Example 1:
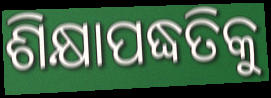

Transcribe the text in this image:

ଶିକ୍ଷାପଦ୍ଧତିକୁ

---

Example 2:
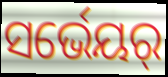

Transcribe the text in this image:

ସର୍ଭେୟର୍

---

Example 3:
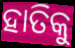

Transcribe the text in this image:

ହାତିକୁ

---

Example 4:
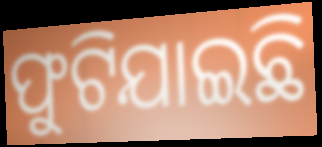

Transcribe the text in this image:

ଫୁଟିଯାଇଛି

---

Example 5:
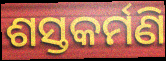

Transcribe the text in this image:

ଶସ୍ତକର୍ମଣି